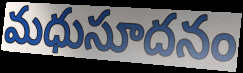
మధుసూదనం